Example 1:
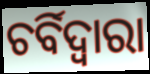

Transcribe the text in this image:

ଚର୍ବିଦ୍ଵାରା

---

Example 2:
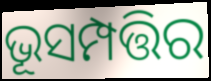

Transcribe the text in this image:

ଭୂସମ୍ପତ୍ତିର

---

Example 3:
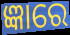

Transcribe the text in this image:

ଜ୍ଞାରେ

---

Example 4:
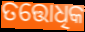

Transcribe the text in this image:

ତତ୍ତୋଧିକ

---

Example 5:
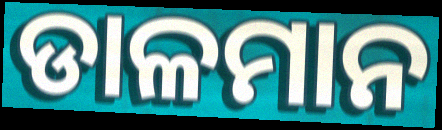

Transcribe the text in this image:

ଡାଳମାନ